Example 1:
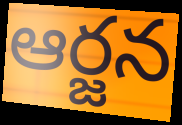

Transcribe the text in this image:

ఆర్జన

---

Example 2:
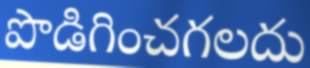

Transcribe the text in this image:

పొడిగించగలదు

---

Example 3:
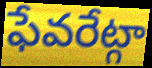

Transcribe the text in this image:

ఫేవరేట్గా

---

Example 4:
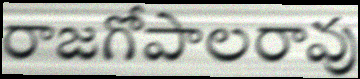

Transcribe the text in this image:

రాజగోపాలరావు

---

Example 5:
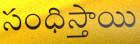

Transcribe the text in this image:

సంధిస్తాయి